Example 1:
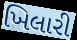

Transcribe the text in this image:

ખિલારી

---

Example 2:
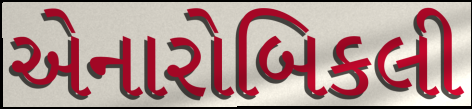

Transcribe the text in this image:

એનારોબિકલી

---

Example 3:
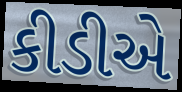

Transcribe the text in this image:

કીડીએ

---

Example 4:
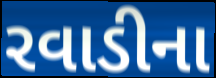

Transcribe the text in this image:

રવાડીના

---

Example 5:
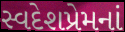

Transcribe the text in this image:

સ્વદેશપ્રેમનાં